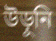
উড়ুনি